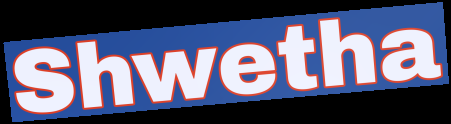
Shwetha